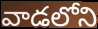
వాడలోని